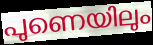
പുണെയിലും